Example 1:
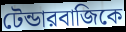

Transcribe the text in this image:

টেন্ডারবাজিকে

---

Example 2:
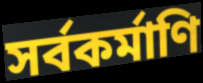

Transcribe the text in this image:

সর্বকর্মাণি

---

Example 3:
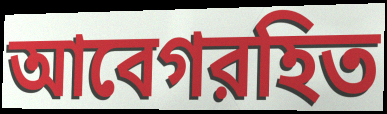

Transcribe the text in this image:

আবেগরহিত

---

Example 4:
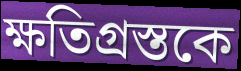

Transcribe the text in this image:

ক্ষতিগ্রস্তকে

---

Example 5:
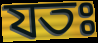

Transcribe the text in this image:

যতঃ